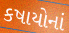
કષાયોનાં